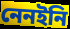
নেনইনি